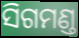
ସିଗମଣ୍ଡ